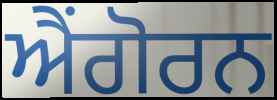
ਐਂਗੋਰਨ